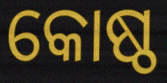
କୋଷ୍ଠ